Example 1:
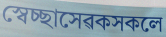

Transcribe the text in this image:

স্বেচ্ছাসেৱকসকলে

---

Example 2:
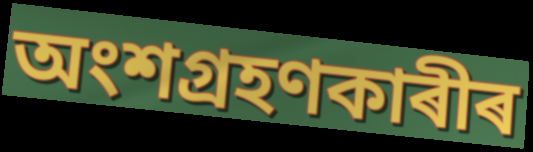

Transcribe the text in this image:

অংশগ্ৰহণকাৰীৰ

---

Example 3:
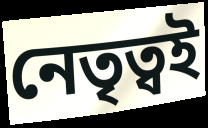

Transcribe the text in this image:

নেতৃত্বই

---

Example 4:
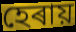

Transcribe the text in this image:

হেৰায়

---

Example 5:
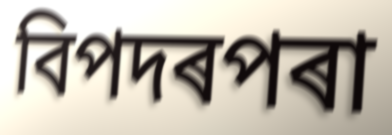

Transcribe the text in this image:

বিপদৰপৰা